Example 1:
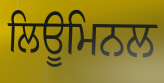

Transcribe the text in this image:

ਲਿਊਮਿਨਲ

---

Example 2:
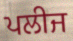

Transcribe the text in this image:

ਪਲੀਜ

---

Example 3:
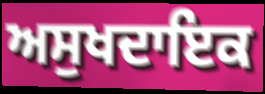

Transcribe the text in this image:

ਅਸੁਖਦਾਇਕ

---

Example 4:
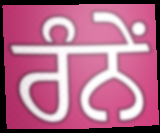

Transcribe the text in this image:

ਰੰਨੇਂ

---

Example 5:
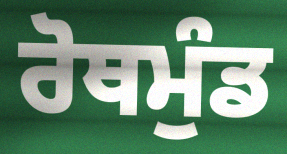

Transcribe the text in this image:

ਰੋਥਮੁੰਡ